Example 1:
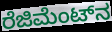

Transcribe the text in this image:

ರೆಜಿಮೆಂಟ್‌ನ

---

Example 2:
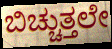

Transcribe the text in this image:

ಬಿಚ್ಚುತ್ತಲೇ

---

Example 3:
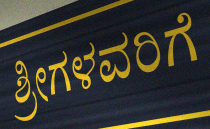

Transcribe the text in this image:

ಶ್ರೀಗಳವರಿಗೆ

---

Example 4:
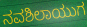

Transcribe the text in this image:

ನವಶಿಲಾಯುಗ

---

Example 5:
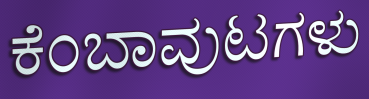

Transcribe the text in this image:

ಕೆಂಬಾವುಟಗಳು